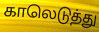
காலெடுத்து